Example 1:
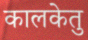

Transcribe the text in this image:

कालकेतु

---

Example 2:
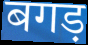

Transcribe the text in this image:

बगड़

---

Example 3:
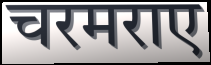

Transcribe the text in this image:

चरमराए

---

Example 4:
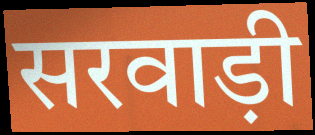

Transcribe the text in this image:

सरवाड़ी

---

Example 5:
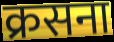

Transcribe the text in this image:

क्रसना